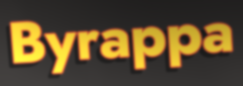
Byrappa